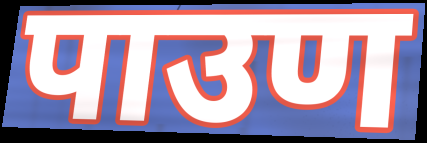
पाउण